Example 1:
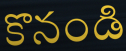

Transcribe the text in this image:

కొనండి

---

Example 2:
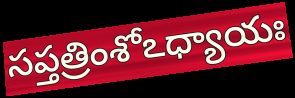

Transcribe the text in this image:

సప్తత్రింశోఽధ్యాయః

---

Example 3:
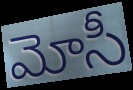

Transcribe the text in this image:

మోసీ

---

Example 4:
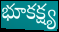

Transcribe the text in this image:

భూకక్ష్య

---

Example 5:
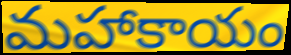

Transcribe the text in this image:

మహాకాయం